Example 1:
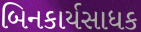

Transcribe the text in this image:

બિનકાર્યસાધક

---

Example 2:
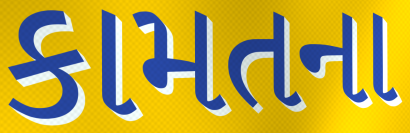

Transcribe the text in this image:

કામતના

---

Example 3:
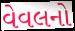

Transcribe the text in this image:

વેવલનો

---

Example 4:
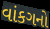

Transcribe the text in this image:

વાંકગનો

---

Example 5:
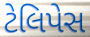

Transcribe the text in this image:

ટેલિપેસ